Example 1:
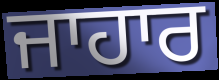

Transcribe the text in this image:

ਜਾਹਾਰ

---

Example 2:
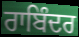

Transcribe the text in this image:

ਰਾਬਿੰਦਰ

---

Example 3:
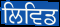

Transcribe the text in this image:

ਲਿਵਿਡ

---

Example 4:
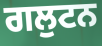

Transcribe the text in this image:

ਗਲੁਟਨ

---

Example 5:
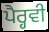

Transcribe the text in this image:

ਪੈਰ੍ਹਵੀ